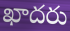
ఖాదరు